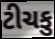
ટીચકુ